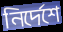
নিৰ্দেশে